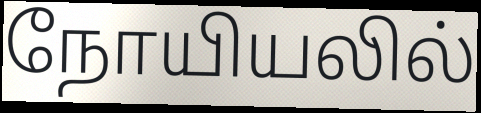
நோயியலில்